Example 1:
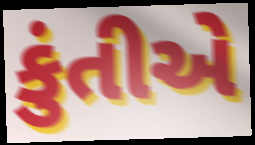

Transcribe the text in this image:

કુંતીએ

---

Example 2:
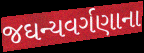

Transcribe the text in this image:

જઘન્યવર્ગણાના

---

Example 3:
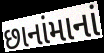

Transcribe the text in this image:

છાનાંમાનાં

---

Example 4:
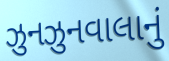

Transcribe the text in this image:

ઝુનઝુનવાલાનું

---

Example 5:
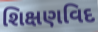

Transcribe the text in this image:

શિક્ષણવિદ